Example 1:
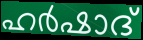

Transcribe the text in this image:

ഹർഷാദ്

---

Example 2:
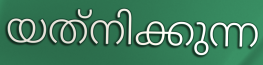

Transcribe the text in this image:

യത്‌നിക്കുന്ന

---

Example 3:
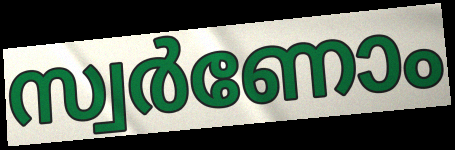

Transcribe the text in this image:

സ്വർണോം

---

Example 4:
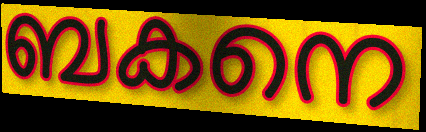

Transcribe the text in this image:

ബകനെ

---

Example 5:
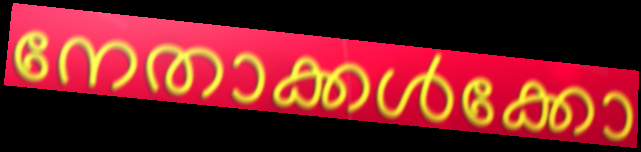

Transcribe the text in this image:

നേതാക്കൾക്കോ